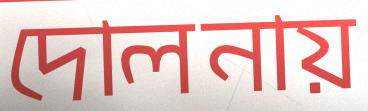
দোলনায়